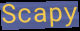
Scapy